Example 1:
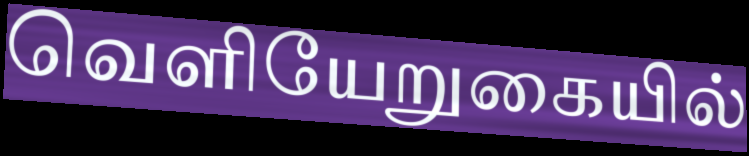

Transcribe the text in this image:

வெளியேறுகையில்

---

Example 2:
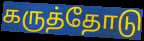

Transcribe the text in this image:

கருத்தோடு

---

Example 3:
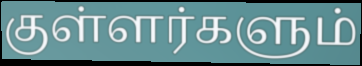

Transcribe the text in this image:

குள்ளர்களும்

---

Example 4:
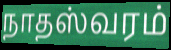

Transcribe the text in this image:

நாதஸ்வரம்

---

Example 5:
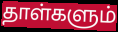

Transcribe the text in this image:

தாள்களும்